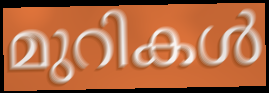
മുറികൾ